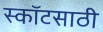
स्कॉटसाठी